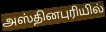
அஸ்தினபுரியில்